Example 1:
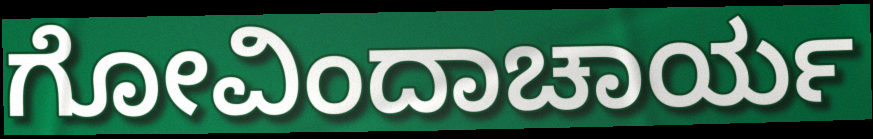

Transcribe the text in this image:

ಗೋವಿಂದಾಚಾರ್ಯ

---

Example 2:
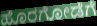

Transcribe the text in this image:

ಹೊರಗೋಡೆಗೆ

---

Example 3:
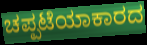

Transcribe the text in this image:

ಚಪ್ಪಟೆಯಾಕಾರದ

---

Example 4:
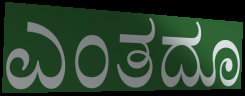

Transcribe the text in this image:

ಎಂತದೂ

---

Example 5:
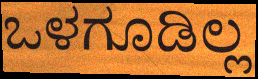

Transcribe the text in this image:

ಒಳಗೂಡಿಲ್ಲ